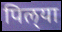
पिल्या